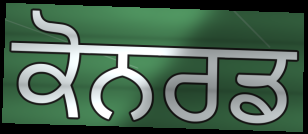
ਕੋਨਰਡ